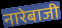
नारेबाजी